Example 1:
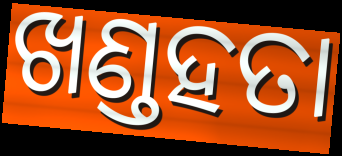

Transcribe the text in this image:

ଖଣ୍ଡହତା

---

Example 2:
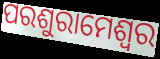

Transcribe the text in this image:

ପରଶୁରାମେଶ୍ୱର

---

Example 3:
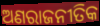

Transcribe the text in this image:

ଅଣରାଜନୀତିକ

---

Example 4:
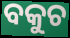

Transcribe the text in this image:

ବକୁଚ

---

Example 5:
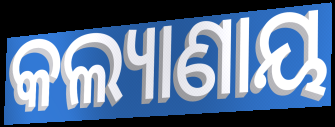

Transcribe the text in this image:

କଲ୍ୟାଣାୟ